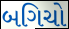
બગિચો